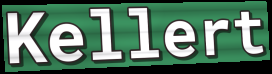
Kellert